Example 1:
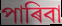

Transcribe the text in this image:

পাৰিবা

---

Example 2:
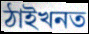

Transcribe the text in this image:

ঠাইখনত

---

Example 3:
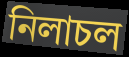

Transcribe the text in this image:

নিলাচল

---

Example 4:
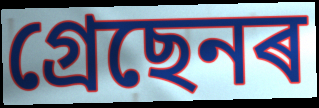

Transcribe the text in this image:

গ্ৰেছেনৰ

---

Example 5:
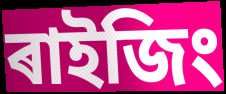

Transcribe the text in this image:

ৰাইজিং